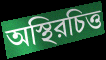
অস্থিরচিত্ত